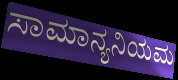
ಸಾಮಾನ್ಯನಿಯಮ